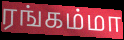
ரங்கம்மா